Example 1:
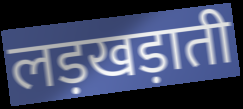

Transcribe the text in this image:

लड़खड़ाती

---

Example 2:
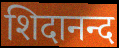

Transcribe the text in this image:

शिदानन्द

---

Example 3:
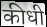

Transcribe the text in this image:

कीधी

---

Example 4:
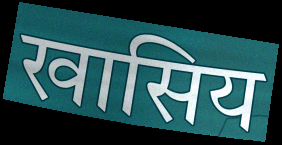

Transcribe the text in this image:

खासिय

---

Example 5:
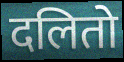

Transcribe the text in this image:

दलितो